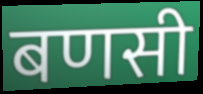
बणसी